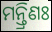
ମନ୍ତ୍ରିଣଃ